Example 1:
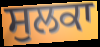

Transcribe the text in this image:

ਸੁਲਕਾ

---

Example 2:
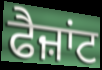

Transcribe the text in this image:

ਫੈਜ਼ਾਂਟ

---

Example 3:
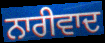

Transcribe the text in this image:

ਨਾਰੀਵਾਦ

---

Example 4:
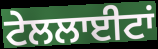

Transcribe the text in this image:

ਟੇਲਲਾਈਟਾਂ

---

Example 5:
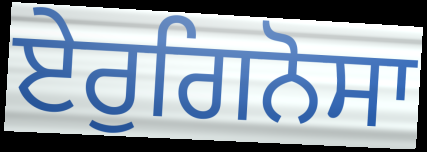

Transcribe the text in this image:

ਏਰੁਗਿਨੋਸਾ